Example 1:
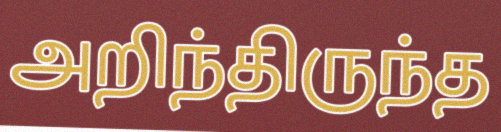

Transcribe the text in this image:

அறிந்திருந்த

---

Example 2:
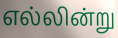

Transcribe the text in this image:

எல்லின்று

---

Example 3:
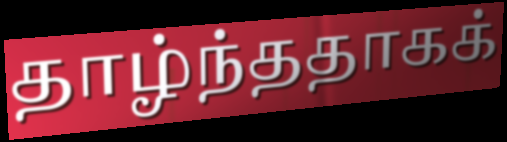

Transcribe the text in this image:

தாழ்ந்ததாகக்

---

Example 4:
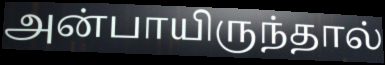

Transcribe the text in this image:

அன்பாயிருந்தால்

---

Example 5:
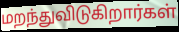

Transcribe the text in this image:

மறந்துவிடுகிறார்கள்